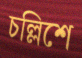
চল্লিশে